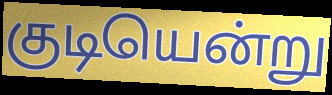
குடியென்று